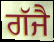
ਗੱਜੈ